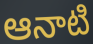
ఆనాటి